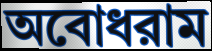
অবোধরাম